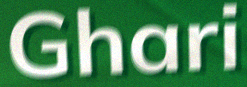
Ghari